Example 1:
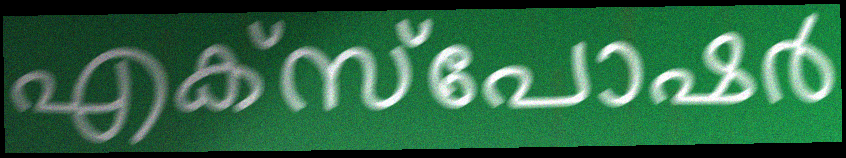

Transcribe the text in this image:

എക്സ്പോഷർ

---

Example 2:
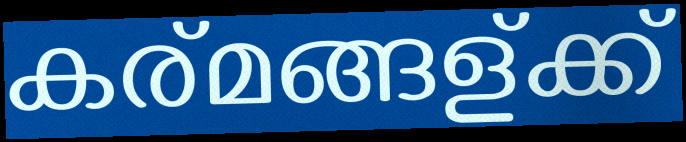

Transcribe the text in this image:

കര്മങ്ങള്ക്ക്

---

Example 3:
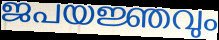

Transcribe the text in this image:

ജപയജ്ഞവും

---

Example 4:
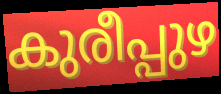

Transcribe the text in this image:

കുരീപ്പുഴ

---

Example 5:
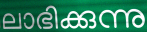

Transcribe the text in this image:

ലാഭിക്കുന്നു